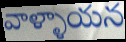
వాళ్ళాయన